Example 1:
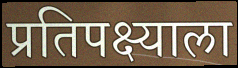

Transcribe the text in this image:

प्रतिपक्ष्याला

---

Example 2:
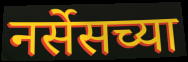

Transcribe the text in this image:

नर्सेसच्या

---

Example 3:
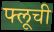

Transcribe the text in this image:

फ्लूची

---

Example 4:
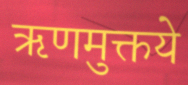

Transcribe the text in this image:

ऋणमुक्तये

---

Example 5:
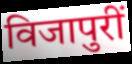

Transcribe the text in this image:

विजापुरीं